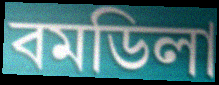
বমডিলা